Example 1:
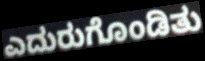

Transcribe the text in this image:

ಎದುರುಗೊಂಡಿತು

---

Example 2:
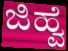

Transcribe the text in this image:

ಜಿಹ್ವೆ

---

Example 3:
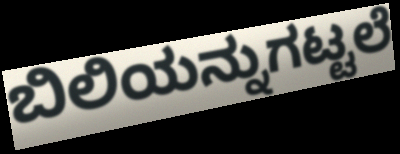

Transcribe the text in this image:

ಬಿಲಿಯನ್ನುಗಟ್ಟಲೆ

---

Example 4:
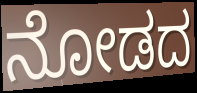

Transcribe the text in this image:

ನೋಡದ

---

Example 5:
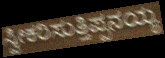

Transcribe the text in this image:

ಸ್ವೀಕರಿಸುತ್ತಿಪ್ಪನಯ್ಯ